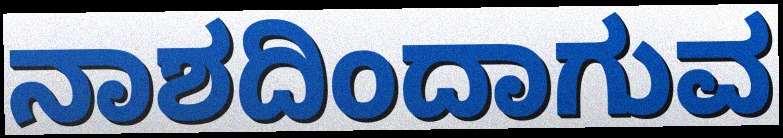
ನಾಶದಿಂದಾಗುವ